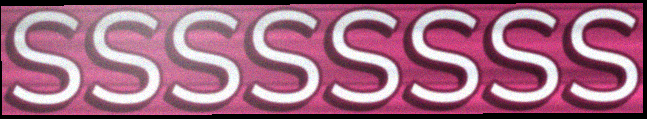
SSSSSSSS